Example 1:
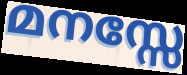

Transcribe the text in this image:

മനസ്സേ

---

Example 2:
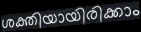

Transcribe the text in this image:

ശക്തിയായിരിക്കാം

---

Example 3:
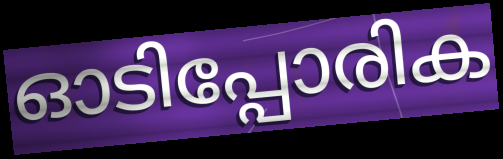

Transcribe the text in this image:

ഓടിപ്പോരിക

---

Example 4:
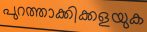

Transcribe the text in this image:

പുറത്താക്കിക്കളയുക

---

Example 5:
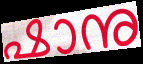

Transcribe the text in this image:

ഷാനു